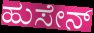
ಹುಸೇನ್